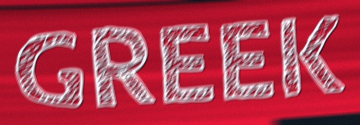
GREEK